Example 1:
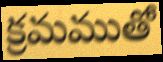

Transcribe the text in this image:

క్రమముతో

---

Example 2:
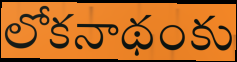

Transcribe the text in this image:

లోకనాథంకు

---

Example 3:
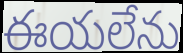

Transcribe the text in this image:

ఈయలేను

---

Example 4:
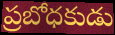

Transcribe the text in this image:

ప్రబోధకుడు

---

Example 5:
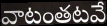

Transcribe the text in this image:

వాటంతటవే